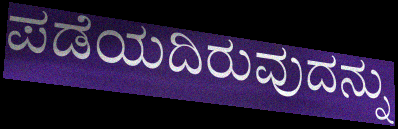
ಪಡೆಯದಿರುವುದನ್ನು